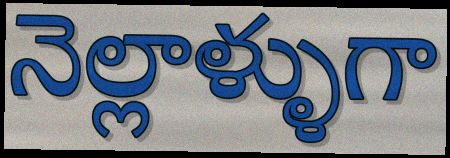
నెల్లాళ్ళుగా